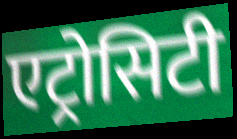
एट्रोसिटी